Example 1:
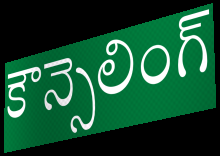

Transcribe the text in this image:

కౌన్సెలింగ్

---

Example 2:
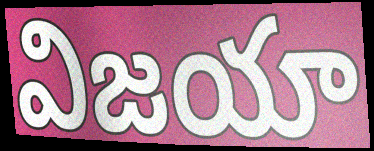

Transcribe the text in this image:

విజయా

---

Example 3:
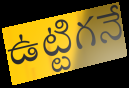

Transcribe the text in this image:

ఉట్టిగనే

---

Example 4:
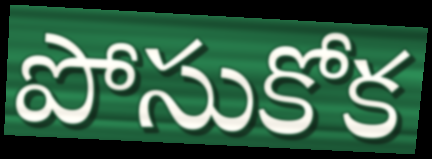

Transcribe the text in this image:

పోసుకోక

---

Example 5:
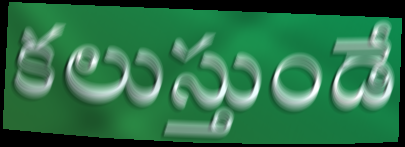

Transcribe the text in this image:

కలుస్తుండే